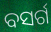
ବସର୍ଗ